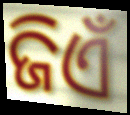
ଜିଏଁ